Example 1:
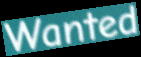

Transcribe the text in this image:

Wanted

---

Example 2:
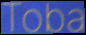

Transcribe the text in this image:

Toba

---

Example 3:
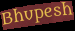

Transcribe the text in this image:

Bhupesh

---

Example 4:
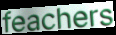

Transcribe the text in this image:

feachers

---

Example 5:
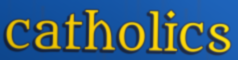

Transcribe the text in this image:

catholics